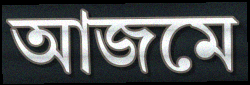
আজমে